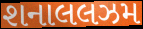
શનાલલઝમ